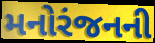
મનોરંજનની